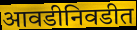
आवडीनिवडीत